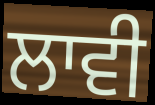
ਲਾਵੀ